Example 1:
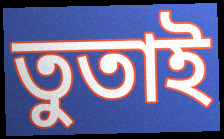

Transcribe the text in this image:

তুতাই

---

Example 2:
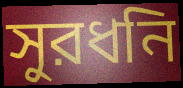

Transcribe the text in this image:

সুরধনি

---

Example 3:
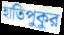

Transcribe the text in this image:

হাতিপুকুর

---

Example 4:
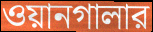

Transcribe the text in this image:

ওয়ানগালার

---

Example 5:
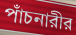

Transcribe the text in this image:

পাঁচনারীর